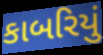
કાબરિયું